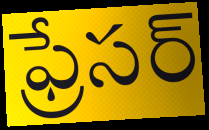
ఫ్రేసర్